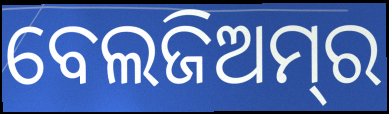
ବେଲଜିଅମ୍‌ର